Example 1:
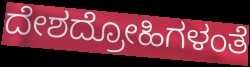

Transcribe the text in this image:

ದೇಶದ್ರೋಹಿಗಳಂತೆ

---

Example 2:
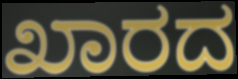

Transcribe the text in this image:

ಖಾರದ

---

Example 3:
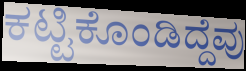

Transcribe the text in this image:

ಕಟ್ಟಿಕೊಂಡಿದ್ದೆವು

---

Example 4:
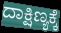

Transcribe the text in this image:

ದಾಕ್ಷಿಣ್ಯಕ್ಕೆ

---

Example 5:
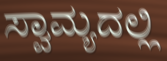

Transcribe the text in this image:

ಸ್ವಾಮ್ಯದಲ್ಲಿ